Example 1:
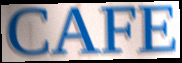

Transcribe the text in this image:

CAFE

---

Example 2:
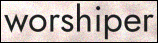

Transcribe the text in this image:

worshiper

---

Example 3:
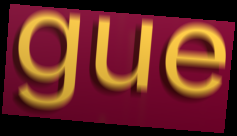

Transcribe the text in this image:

gue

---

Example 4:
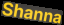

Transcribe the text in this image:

Shanna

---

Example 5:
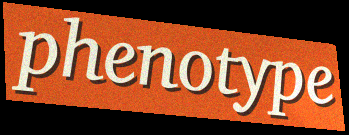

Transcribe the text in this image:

phenotype